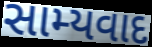
સામ્યવાદ